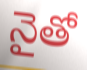
నైతో